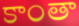
కాంతా